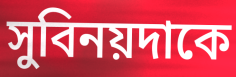
সুবিনয়দাকে